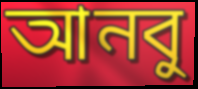
আনবু